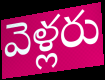
వెళ్లరు